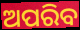
ଅପରିବ